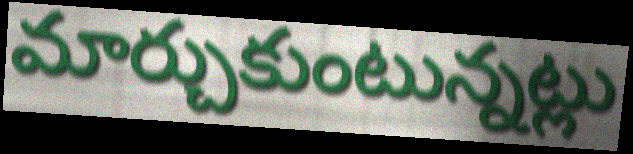
మార్చుకుంటున్నట్లు